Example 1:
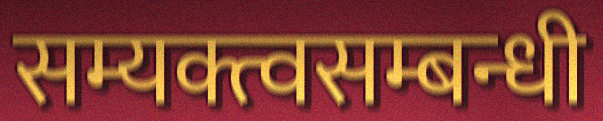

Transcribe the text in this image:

सम्यक्त्वसम्बन्धी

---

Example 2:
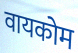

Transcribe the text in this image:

वायकोम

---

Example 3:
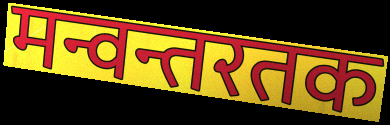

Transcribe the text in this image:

मन्वन्तरतक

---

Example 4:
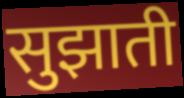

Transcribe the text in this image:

सुझाती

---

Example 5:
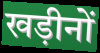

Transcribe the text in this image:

खड़ीनों